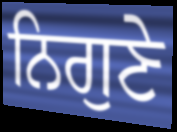
ਨਿਗੁਣੇ